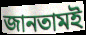
জানতামই